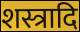
शस्त्रादि